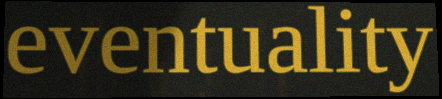
eventuality